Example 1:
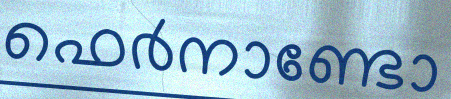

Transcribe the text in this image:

ഫെർനാണ്ടോ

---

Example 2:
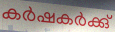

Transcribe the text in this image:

കർഷകർക്കു്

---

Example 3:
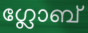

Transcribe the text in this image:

ഗ്ലോബ്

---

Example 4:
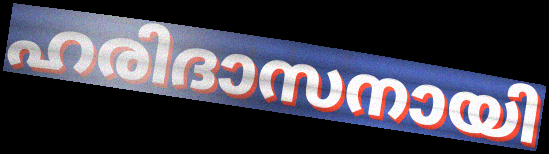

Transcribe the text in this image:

ഹരിദാസനായി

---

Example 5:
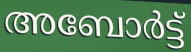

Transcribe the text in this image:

അബോർട്ട്